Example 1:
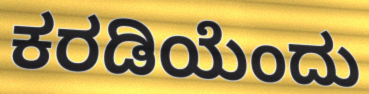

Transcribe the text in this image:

ಕರಡಿಯೆಂದು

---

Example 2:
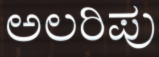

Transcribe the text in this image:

ಅಲರಿಪು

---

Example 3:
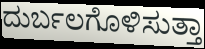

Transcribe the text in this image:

ದುರ್ಬಲಗೊಳಿಸುತ್ತಾ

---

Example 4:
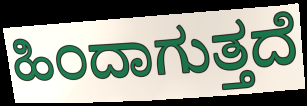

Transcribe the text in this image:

ಹಿಂದಾಗುತ್ತದೆ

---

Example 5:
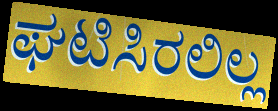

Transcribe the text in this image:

ಘಟಿಸಿರಲಿಲ್ಲ